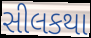
સીલકથા